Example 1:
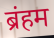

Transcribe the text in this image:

ब्रंहम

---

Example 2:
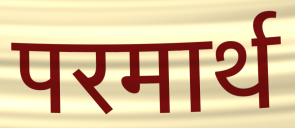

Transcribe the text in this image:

परमार्थ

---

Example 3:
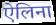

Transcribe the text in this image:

ऐलिना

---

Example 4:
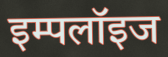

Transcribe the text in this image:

इम्पलॉइज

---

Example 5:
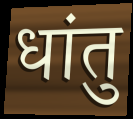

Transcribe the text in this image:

धांतु